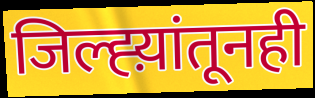
जिल्ह्य़ांतूनही